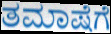
ತಮಾಷೆಗೆ